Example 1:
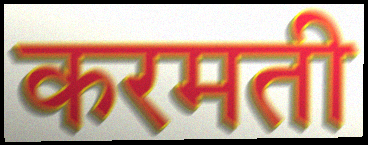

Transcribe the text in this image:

करमती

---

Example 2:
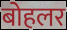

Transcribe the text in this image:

बोहलर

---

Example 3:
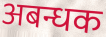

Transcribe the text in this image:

अबन्धक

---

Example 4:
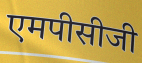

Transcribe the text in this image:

एमपीसीजी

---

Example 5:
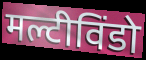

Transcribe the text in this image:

मल्टीविंडो